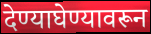
देण्याघेण्यावरून